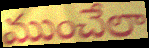
ముంచేలా